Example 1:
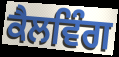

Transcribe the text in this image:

ਕੈਲਵਿੰਗ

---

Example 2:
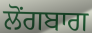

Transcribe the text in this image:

ਲੋਂਗਬਾਗ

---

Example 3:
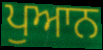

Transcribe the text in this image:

ਪੁਆਨ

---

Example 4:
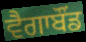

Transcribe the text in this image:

ਵੈਗਾਬੌਂਡ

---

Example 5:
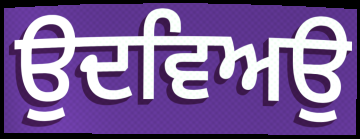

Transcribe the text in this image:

ਉਦਵਿਅਉ